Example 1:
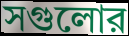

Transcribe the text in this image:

সগুলোর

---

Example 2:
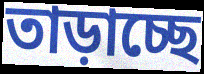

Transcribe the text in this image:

তাড়াচ্ছে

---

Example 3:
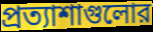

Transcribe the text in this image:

প্রত্যাশাগুলোর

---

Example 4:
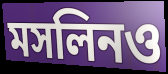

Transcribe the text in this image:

মসলিনও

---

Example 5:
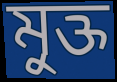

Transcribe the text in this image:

মুক্ত